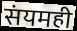
संयमही